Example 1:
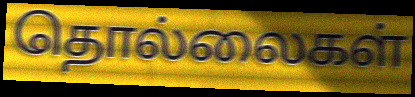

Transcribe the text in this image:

தொல்லைகள்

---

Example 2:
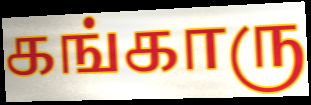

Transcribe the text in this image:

கங்காரு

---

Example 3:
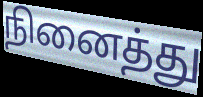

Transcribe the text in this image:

நினைத்து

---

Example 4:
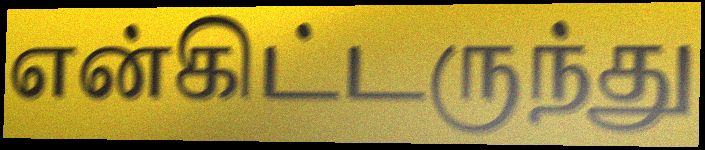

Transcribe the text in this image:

என்கிட்டருந்து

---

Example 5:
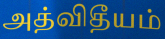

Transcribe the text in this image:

அத்விதீயம்